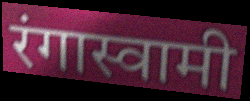
रंगास्वामी